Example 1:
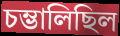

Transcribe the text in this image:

চম্ভালিছিল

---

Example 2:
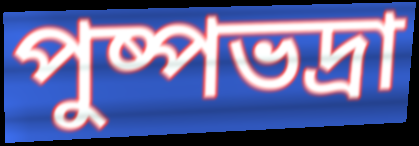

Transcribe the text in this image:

পুষ্পভদ্ৰা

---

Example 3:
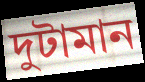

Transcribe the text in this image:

দুটামান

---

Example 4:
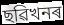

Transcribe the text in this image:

ছৱিখনৰ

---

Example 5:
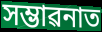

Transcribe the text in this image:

সম্ভাৱনাত